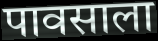
पावसाला